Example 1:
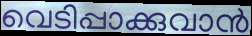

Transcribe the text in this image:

വെടിപ്പാക്കുവാൻ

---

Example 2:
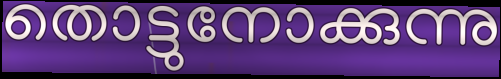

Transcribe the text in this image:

തൊട്ടുനോക്കുന്നു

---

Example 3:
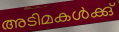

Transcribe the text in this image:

അടിമകൾക്കു്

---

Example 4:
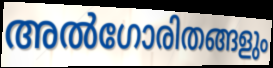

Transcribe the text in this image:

അൽഗോരിതങ്ങളും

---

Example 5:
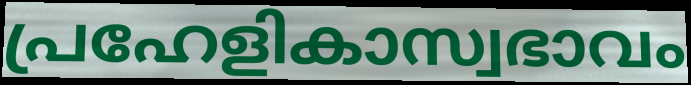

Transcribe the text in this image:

പ്രഹേളികാസ്വഭാവം